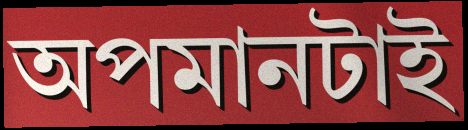
অপমানটাই